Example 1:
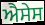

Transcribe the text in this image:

ਐਸੇਸ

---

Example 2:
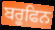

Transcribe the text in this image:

ਬਰੂਫਿਨ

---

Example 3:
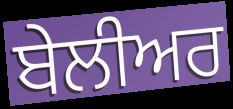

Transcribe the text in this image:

ਬੇਲੀਅਰ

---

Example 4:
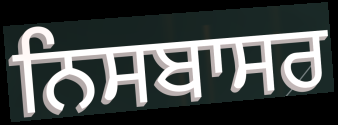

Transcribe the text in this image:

ਨਿਸਬਾਸਰ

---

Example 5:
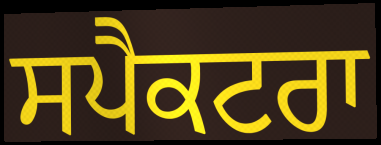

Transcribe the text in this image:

ਸਪੈਕਟਰਾ